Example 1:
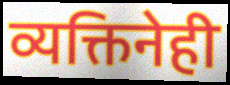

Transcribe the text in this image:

व्यक्तिनेही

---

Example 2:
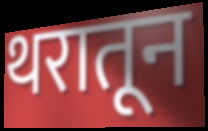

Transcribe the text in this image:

थरातून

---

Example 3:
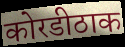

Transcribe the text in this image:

कोरडीठाक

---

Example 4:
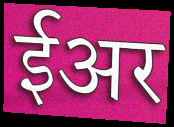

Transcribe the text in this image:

ईअर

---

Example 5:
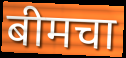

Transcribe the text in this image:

बीमचा